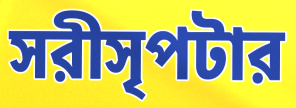
সরীসৃপটার